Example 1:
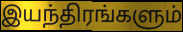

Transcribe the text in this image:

இயந்திரங்களும்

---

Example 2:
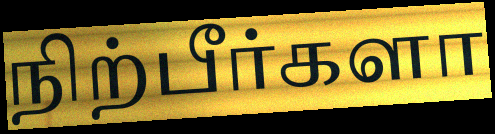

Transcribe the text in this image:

நிற்பீர்களா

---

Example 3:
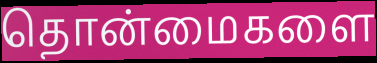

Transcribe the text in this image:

தொன்மைகளை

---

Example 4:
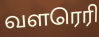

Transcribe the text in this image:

வளரெரி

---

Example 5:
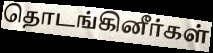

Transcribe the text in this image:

தொடங்கினீர்கள்